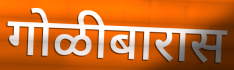
गोळीबारास